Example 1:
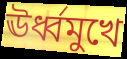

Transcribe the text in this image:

ঊর্ধ্বমুখে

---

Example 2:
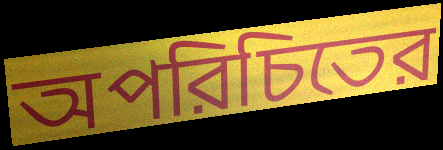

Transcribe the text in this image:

অপরিচিতের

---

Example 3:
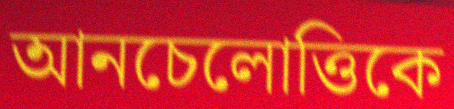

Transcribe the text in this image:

আনচেলোত্তিকে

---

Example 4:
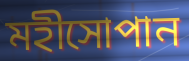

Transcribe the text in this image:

মহীসোপান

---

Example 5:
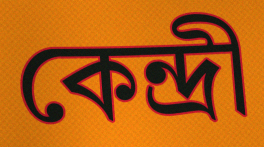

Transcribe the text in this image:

কেন্দ্রী